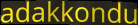
adakkondu